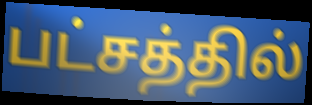
பட்சத்தில்